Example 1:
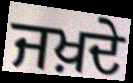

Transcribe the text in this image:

ਜਖ਼ਦੇ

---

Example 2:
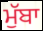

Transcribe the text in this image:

ਮੁੱਬਾ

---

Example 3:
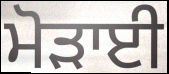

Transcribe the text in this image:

ਮੋੜਾਈ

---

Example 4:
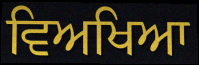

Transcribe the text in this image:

ਵਿਅਖਿਆ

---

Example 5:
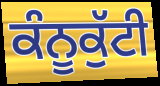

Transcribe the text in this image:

ਕੰਨੂਕੁੱਟੀ